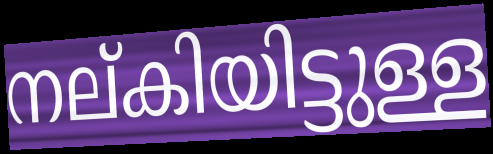
നല്കിയിട്ടുള്ള